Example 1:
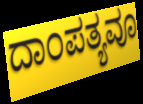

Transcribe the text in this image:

ದಾಂಪತ್ಯವೂ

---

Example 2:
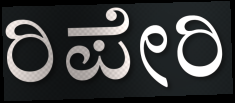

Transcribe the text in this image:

ರಿಪೇರಿ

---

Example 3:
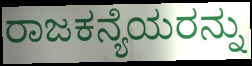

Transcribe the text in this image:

ರಾಜಕನ್ಯೆಯರನ್ನು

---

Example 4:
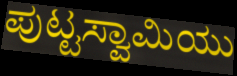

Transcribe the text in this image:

ಪುಟ್ಟಸ್ವಾಮಿಯು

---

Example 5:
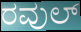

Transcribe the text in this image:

ರವುಲ್